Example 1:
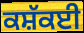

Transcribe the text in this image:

ਕਸ਼ੱਕਈ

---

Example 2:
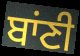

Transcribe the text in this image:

ਬਾਂਣੀ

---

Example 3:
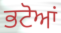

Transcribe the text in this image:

ਭਟੋਆਂ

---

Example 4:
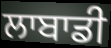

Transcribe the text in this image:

ਲਾਬਾਡੀ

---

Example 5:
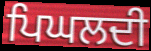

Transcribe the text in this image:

ਪਿਘਲਦੀ